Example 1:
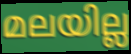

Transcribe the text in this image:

മലയില്ല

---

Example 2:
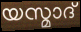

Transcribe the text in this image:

യസ്മാദ്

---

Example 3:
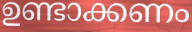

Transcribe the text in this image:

ഉണ്ടാക്കണം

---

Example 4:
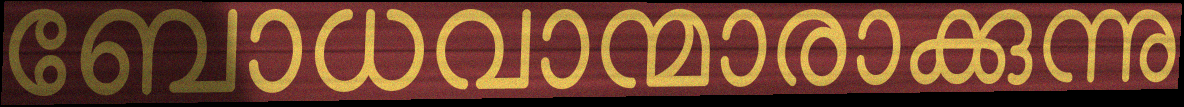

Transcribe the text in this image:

ബോധവാന്മാരാക്കുന്നു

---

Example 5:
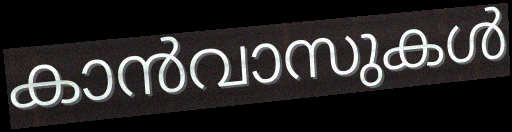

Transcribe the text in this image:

കാൻവാസുകൾ